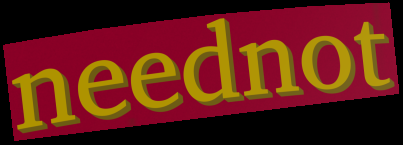
neednot